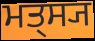
ਮਤ੍ਸ੍ਯ